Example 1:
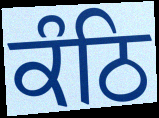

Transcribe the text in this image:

ਕੰਠਿ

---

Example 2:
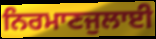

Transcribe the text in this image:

ਨਿਰਮਾਣਜੁਲਾਈ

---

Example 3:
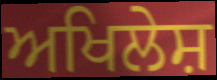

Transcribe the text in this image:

ਅਖਿਲੇਸ਼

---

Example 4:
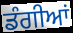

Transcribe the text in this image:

ਡੰਗੀਆਂ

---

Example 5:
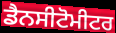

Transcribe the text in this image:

ਡੈਨਸੀਟੋਮੀਟਰ